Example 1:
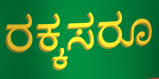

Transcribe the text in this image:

ರಕ್ಕಸರೂ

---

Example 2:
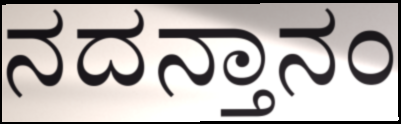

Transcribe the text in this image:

ನದನ್ತಾನಂ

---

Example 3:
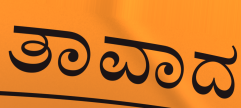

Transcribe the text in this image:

ತಾವಾದ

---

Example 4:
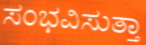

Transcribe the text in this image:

ಸಂಭವಿಸುತ್ತಾ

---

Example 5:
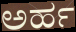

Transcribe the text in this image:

ಅರ್ಹ